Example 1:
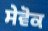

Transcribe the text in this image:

ਸੇਵੋਕ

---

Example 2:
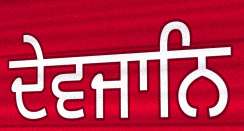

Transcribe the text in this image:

ਦੇਵਜਾਨਿ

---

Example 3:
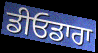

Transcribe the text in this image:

ਡੀਓਡਾਰਾ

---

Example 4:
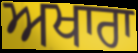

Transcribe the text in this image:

ਅਖਾਰਾ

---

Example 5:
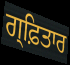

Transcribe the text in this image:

ਗ੍ਫ਼ਿਤਾਰ